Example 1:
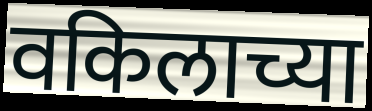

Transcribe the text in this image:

वकिलाच्या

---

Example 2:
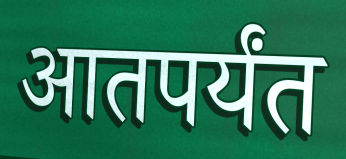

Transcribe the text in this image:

आतपर्यंत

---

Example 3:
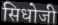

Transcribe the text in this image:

सिधोजी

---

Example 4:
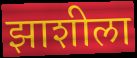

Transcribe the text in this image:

झाशीला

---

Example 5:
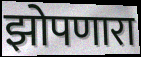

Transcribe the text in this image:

झोपणारा